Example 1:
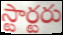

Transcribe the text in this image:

స్టార్టరు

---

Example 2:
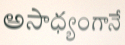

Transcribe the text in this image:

అసాధ్యంగానే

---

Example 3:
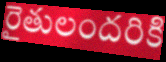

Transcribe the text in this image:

రైతులందరికి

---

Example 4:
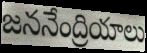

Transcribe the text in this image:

జననేంద్రియాలు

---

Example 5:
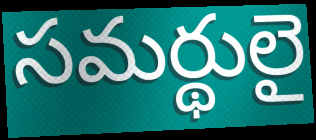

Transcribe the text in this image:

సమర్థులై